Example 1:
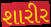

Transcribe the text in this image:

શારીર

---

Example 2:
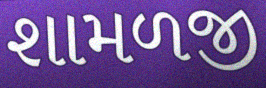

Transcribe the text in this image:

શામળજી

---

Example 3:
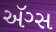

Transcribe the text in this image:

ઍગ્સ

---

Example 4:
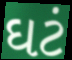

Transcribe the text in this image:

ઘટં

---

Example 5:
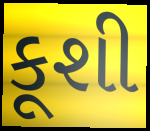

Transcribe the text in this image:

કૂશી